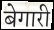
बेगारी